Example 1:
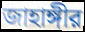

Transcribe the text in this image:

জাহাঙ্গীর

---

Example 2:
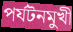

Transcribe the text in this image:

পর্যটনমুখী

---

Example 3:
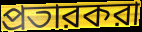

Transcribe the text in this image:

প্রতারকরা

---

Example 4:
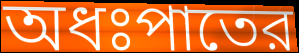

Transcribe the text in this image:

অধঃপাতের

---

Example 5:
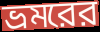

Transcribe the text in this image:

ভ্রমরের